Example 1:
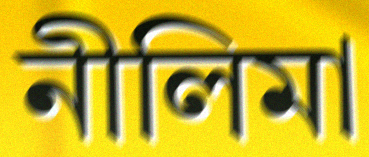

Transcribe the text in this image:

নীলিমা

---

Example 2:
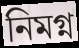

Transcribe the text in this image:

নিমগ্ন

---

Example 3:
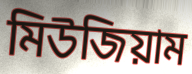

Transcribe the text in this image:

মিউজিয়াম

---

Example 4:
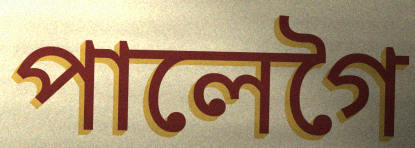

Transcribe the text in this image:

পালেগৈ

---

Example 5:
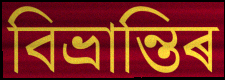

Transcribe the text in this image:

বিভ্ৰান্তিৰ